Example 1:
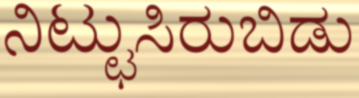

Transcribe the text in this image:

ನಿಟ್ಟುಸಿರುಬಿಡು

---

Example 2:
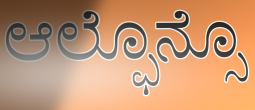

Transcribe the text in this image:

ಆಲ್ಫೊನ್ಸೊ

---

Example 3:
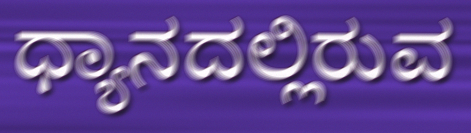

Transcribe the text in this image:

ಧ್ಯಾನದಲ್ಲಿರುವ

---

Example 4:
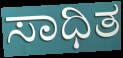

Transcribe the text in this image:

ಸಾಧಿತ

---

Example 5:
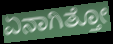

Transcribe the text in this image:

ಏನಾಗಿತ್ತೋ